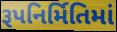
રૂપનિર્મિતિમાં